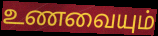
உணவையும்